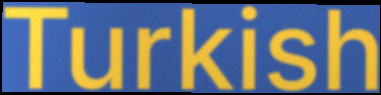
Turkish